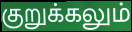
குறுக்கலும்